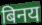
बिनय